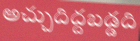
అచ్చుదిద్దబడ్డది